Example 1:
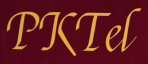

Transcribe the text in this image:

PKTel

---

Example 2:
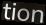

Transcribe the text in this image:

tion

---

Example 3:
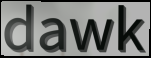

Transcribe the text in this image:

dawk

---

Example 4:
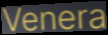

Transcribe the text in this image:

Venera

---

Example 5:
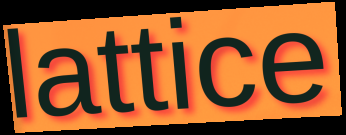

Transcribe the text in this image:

lattice